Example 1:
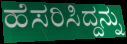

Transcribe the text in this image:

ಹೆಸರಿಸಿದ್ದನ್ನು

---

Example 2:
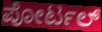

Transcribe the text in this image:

ಪೋರ್ಟಲ್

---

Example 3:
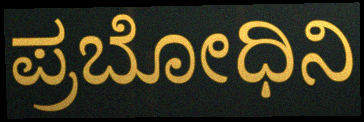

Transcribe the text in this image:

ಪ್ರಬೋಧಿನಿ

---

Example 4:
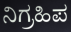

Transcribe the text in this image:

ನಿಗ್ರಹಿಪ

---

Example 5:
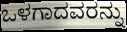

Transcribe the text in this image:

ಒಳಗಾದವರನ್ನು